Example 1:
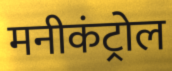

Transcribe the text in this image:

मनीकंट्रोल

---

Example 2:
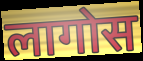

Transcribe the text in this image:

लागोस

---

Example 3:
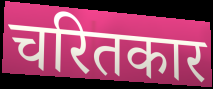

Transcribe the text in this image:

चरितकार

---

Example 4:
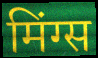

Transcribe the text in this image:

मिंग्स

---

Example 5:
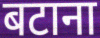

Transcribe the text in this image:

बटाना